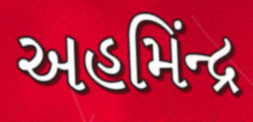
અહમિંન્દ્ર